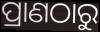
ପ୍ରାଣଠାରୁ